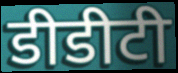
डीडीटी